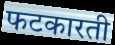
फटकारती